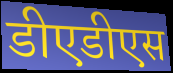
डीएडीएस